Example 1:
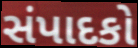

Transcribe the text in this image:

સંપાદકો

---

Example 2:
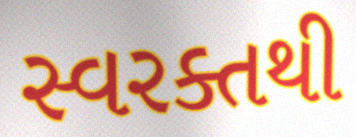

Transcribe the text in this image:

સ્વરક્તથી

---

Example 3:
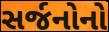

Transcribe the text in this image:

સર્જનોનો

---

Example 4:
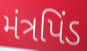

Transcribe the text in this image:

મંત્રપિંડ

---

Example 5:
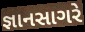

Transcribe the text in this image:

જ્ઞાનસાગરે